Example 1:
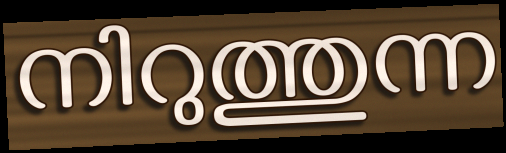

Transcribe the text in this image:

നിറുത്തുന്ന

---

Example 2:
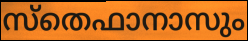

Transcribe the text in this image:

സ്തെഫാനാസും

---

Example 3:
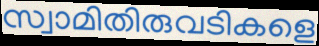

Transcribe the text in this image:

സ്വാമിതിരുവടികളെ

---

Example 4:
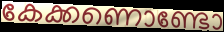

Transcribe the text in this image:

കേക്കണൊണ്ടോ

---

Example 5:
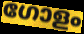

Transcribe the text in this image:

ഗോളം